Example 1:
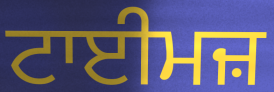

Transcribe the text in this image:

ਟਾਈਮਜ਼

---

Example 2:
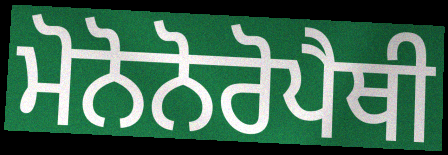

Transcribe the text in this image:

ਮੋਨੋਨੋਰੋਪੈਥੀ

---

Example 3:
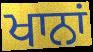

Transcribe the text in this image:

ਖਾਨਾਂ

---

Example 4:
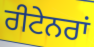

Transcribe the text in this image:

ਰੀਟੇਨਰਾਂ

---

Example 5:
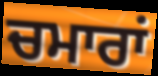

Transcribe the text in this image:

ਚਮਾਰਾਂ